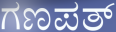
ಗಣಪತ್